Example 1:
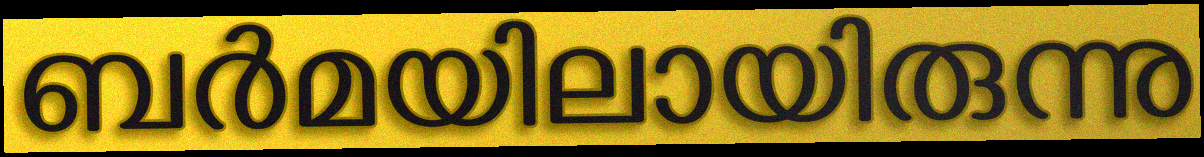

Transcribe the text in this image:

ബർമയിലായിരുന്നു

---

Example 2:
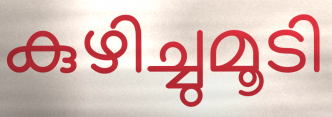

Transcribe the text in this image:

കുഴിച്ചുമൂടി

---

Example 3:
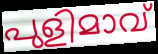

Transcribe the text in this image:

പുളിമാവ്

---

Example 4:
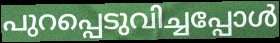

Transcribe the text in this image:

പുറപ്പെടുവിച്ചപ്പോൾ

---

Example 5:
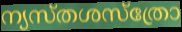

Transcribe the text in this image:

ന്യസ്തശസ്ത്രോ